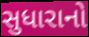
સુધારાનો